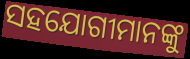
ସହଯୋଗୀମାନଙ୍କୁ